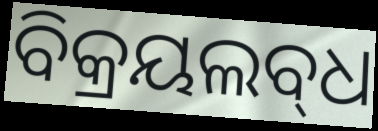
ବିକ୍ରୟଲବ୍‌ଧ